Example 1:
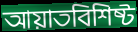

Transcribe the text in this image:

আয়াতবিশিষ্ট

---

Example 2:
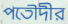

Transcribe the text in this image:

পতৌদীর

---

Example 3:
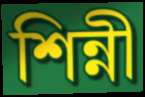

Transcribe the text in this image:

শিন্নী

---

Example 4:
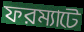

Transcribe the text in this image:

ফরম্যাটে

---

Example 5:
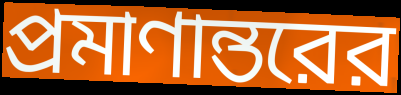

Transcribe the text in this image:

প্রমাণান্তরের